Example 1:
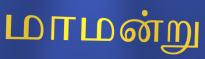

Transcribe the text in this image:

மாமன்று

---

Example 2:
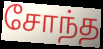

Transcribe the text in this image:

சோந்த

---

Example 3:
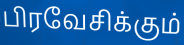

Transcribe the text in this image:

பிரவேசிக்கும்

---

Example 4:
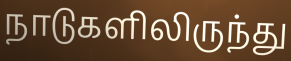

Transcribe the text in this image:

நாடுகளிலிருந்து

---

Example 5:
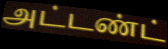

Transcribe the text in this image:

அட்டண்ட்